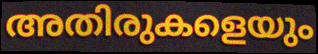
അതിരുകളെയും